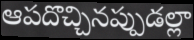
ఆపదొచ్చినప్పుడల్లా